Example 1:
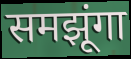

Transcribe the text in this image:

समझूंगा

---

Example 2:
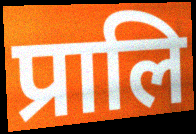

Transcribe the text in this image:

प्रालि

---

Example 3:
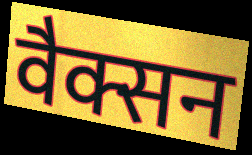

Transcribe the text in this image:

वैक्सन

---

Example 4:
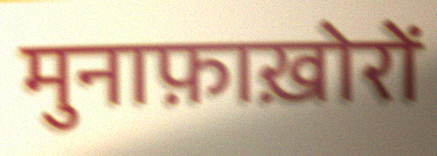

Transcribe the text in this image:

मुनाफ़ाख़ोरों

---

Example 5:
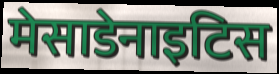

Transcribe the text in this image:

मेसाडेनाइटिस